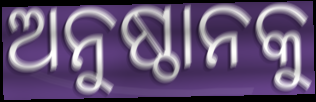
ଅନୁଷ୍ଠାନକୁ